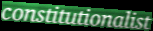
constitutionalist